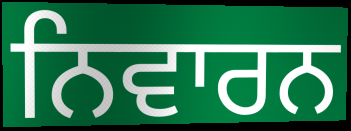
ਨਿਵਾਰਨ